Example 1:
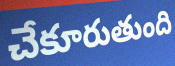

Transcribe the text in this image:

చేకూరుతుంది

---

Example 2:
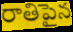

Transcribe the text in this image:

రాతిపైన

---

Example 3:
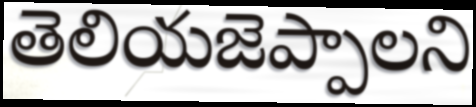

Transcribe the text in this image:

తెలియజెప్పాలని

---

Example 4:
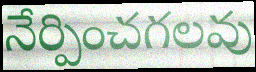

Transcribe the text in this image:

నేర్పించగలవు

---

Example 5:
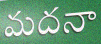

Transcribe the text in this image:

మదనా